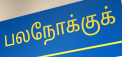
பலநோக்குக்